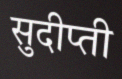
सुदीप्ती